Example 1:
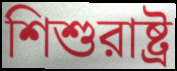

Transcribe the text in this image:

শিশুরাষ্ট্র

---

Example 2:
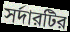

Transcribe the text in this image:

সর্দারটির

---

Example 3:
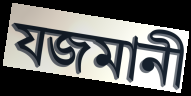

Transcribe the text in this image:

যজমানী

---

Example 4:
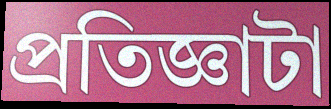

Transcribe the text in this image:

প্রতিজ্ঞাটা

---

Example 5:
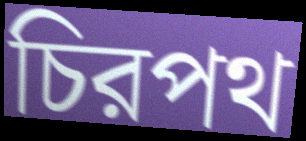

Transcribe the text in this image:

চিরপথ